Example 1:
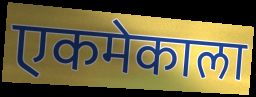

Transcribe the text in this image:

एकमेकाला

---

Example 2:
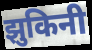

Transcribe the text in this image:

झुकिनी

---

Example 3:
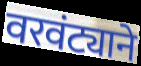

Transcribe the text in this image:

वरवंट्याने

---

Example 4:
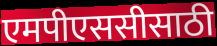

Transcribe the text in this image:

एमपीएससीसाठी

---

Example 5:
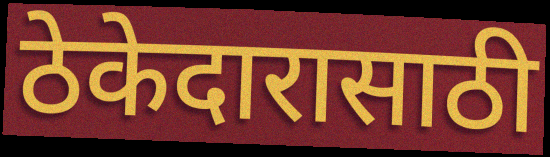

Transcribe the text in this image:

ठेकेदारासाठी